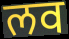
लव